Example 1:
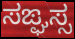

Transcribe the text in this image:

ಸಙ್ಘಸ್ಸ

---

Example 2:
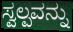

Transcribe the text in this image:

ಸ್ವಲ್ಪವನ್ನು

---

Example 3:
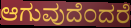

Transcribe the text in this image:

ಆಗುವುದೆಂದರೆ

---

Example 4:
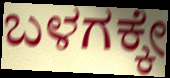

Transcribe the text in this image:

ಬಳಗಕ್ಕೇ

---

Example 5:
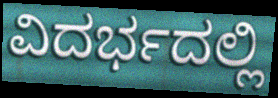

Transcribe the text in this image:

ವಿದರ್ಭದಲ್ಲಿ